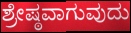
ಶ್ರೇಷ್ಠವಾಗುವುದು